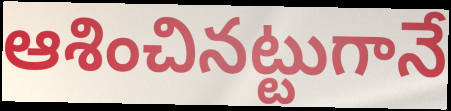
ఆశించినట్టుగానే